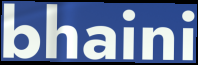
bhaini